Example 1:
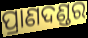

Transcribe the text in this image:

ପ୍ରାଣଦଣ୍ଡର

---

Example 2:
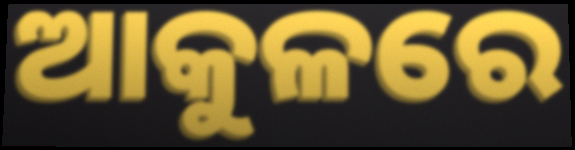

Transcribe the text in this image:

ଆକୁଳରେ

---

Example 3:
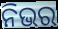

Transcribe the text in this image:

ନିଭର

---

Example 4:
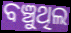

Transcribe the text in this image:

ବଞ୍ଚୁଥିଲ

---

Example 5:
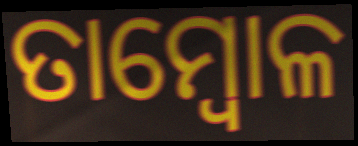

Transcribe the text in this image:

ତାମ୍ବୋଳ